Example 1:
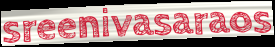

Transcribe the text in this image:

sreenivasaraos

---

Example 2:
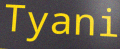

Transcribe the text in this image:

Tyani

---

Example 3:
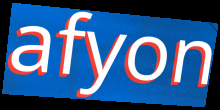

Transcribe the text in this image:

afyon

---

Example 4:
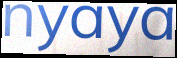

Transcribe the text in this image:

nyaya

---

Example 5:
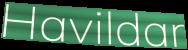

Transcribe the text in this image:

Havildar